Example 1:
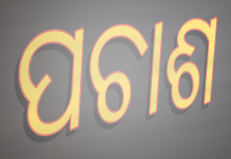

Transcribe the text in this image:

ପଚାଶ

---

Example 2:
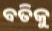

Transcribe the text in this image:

ବତିକୁ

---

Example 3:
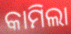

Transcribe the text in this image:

କାମିଲା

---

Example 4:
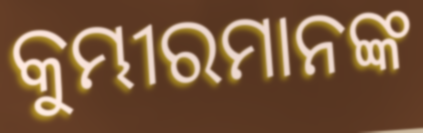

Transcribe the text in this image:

କୁମ୍ଭୀରମାନଙ୍କ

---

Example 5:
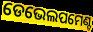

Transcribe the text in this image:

ଡେଭେଲପମେଣ୍ଟ